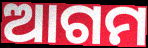
ଆଗମ